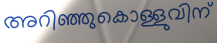
അറിഞ്ഞുകൊള്ളുവിന്